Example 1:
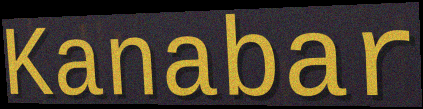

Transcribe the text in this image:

Kanabar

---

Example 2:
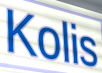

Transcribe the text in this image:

Kolis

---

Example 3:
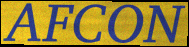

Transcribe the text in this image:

AFCON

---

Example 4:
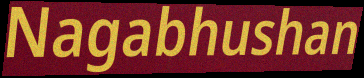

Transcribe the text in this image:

Nagabhushan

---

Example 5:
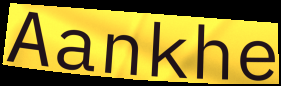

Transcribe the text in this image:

Aankhe